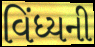
વિંધ્યની